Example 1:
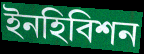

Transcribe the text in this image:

ইনহিবিশন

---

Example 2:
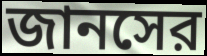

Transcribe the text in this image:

জানসের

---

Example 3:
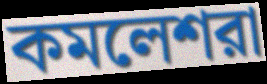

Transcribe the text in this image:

কমলেশরা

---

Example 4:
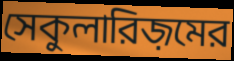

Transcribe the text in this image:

সেকুলারিজ়মের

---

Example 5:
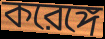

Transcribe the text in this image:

করেঙ্গে